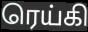
ரெய்கி